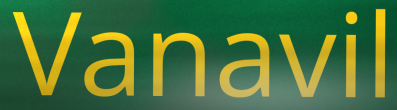
Vanavil